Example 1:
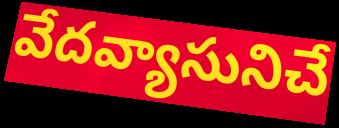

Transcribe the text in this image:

వేదవ్యాసునిచే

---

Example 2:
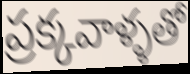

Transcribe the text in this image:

ప్రక్కవాళ్ళతో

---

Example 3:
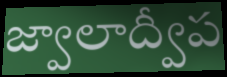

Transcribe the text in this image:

జ్వాలాద్వీప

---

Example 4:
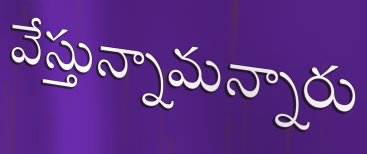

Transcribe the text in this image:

వేస్తున్నామన్నారు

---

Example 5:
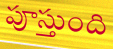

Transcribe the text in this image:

పూస్తుంది